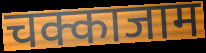
चक्काजाम